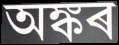
অঙ্কৰ